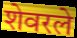
शेवरले